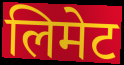
लिमेट